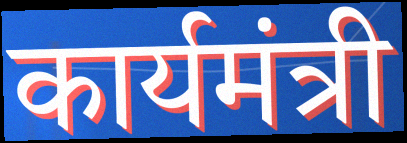
कार्यमंत्री